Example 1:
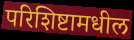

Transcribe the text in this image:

परिशिष्टामधील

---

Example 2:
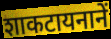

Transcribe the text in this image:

शाकटायनानें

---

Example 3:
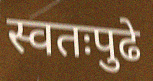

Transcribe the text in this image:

स्वतःपुढे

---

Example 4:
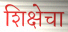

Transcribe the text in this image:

शिक्षेचा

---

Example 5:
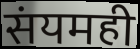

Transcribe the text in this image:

संयमही